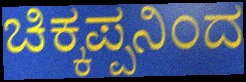
ಚಿಕ್ಕಪ್ಪನಿಂದ